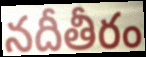
నదీతీరం